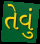
તેવું